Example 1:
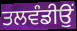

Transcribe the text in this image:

ਤਲਵੰਡੀਉਂ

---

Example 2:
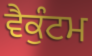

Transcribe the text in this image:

ਵੈਕੁੰਟਮ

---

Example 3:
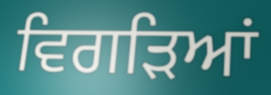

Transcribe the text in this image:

ਵਿਗੜਿਆਂ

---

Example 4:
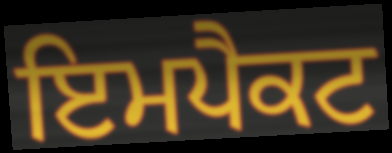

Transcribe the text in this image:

ਇਮਪੈਕਟ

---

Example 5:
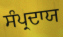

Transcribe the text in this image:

ਸੰਪ੍ਰਦਾਯ